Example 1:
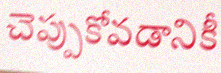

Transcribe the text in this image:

చెప్పుకోవడానికీ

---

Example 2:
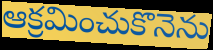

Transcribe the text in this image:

ఆక్రమించుకొనెను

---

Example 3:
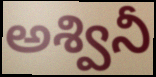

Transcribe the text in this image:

అశ్వినీ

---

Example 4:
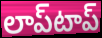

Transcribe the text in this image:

లాప్‌టాప్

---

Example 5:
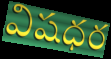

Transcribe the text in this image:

విషధర